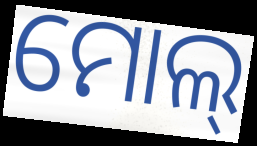
ମୋଲ୍